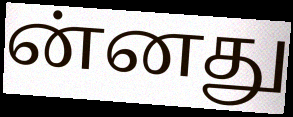
ன்னது